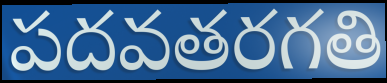
పదవతరగతి